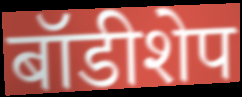
बॉडीशेप